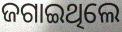
ଜଗାଇଥିଲେ